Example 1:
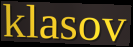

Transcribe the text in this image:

klasov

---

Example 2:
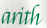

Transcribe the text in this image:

arith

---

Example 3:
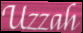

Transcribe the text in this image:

Uzzah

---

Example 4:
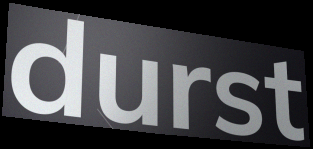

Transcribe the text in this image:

durst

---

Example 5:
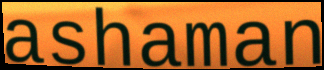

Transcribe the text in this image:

ashaman